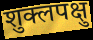
शुक्लपक्षु